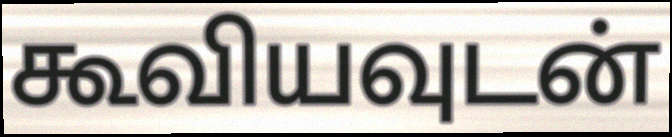
கூவியவுடன்